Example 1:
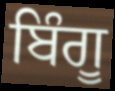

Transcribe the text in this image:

ਬਿੰਗੂ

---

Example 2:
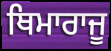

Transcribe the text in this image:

ਥਿਮਾਰਾਜੂ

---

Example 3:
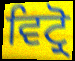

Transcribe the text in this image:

ਵਿਟ੍ਰੋ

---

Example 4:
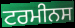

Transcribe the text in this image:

ਟਰਮੀਨਸ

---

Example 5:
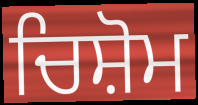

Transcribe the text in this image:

ਚਿਸ਼ੋਮ